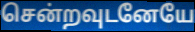
சென்றவுடனேயே